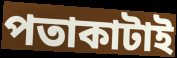
পতাকাটাই